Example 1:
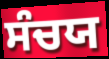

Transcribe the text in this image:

ਸੰਚਯ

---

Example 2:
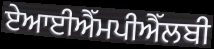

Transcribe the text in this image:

ਏਆਈਐੱਮਪੀਐੱਲਬੀ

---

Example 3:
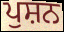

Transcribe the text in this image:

ਪੁਸ਼ਨ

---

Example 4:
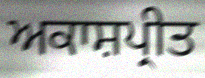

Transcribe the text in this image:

ਅਕਾਸ਼ਪ੍ਰੀਤ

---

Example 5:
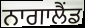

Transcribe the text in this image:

ਨਾਗਾਲੈਂਡ